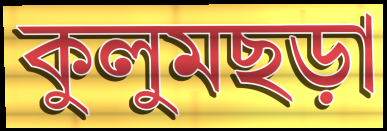
কুলুমছড়া